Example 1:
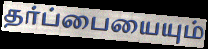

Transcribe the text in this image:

தர்ப்பையையும்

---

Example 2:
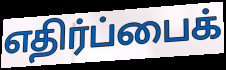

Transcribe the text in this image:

எதிர்ப்பைக்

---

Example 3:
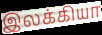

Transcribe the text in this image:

இலக்கியா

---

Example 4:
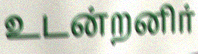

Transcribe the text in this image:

உடன்றனிர்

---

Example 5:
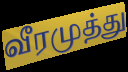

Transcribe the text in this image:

வீரமுத்து